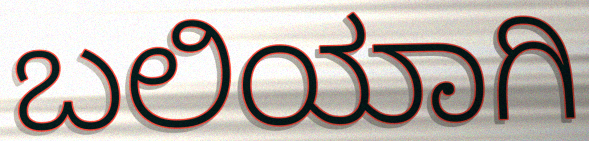
ಬಲಿಯಾಗಿ